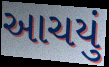
આચયું